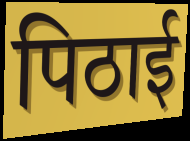
पिठाई